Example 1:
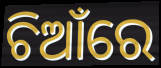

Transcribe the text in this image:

ଚିଆଁରେ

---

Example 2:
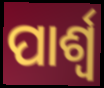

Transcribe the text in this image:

ପାର୍ଶ୍ବ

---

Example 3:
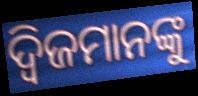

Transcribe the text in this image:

ଦ୍ୱିଜମାନଙ୍କୁ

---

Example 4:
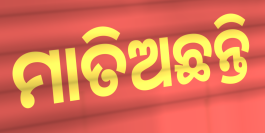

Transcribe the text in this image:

ମାତିଅଛନ୍ତି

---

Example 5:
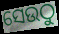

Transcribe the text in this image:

ସେଉଠୁ